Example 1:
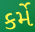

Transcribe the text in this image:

કર્મે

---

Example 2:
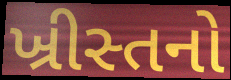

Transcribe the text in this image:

ખ્રીસ્તનો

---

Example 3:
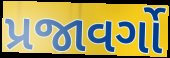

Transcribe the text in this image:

પ્રજાવર્ગો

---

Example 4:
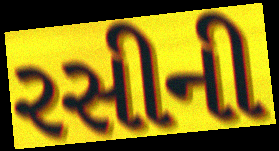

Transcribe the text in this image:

રસીની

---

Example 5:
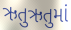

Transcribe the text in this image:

ઋતુઋતુમાં